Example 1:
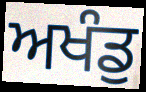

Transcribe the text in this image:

ਅਖੰਡੁ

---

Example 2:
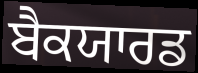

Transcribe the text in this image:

ਬੈਕਯਾਰਡ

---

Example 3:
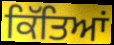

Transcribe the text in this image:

ਕਿੱਤਿਆਂ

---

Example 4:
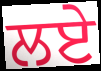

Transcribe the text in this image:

ਲਏ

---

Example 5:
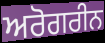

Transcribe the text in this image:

ਅਰੋਗਰੀਨ